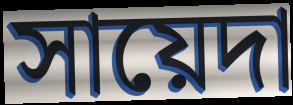
সায়েদা